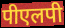
पीएलपी